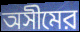
অসীমের